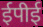
ईपीई